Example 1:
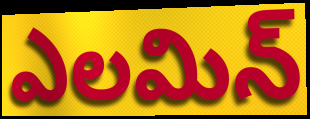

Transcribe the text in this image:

ఎలమిన్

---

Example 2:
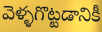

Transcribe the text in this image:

వెళ్ళగొట్టడానికీ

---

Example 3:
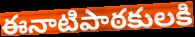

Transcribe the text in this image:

ఈనాటిపాఠకులకి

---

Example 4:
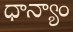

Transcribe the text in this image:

ధాన్యాం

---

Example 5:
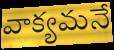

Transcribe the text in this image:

వాక్యమనే